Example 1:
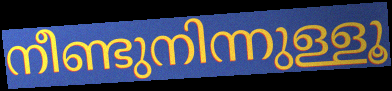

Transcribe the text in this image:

നീണ്ടുനിന്നുള്ളൂ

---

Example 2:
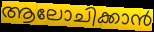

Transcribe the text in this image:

ആലോചിക്കാൻ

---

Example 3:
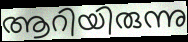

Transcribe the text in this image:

ആറിയിരുന്നു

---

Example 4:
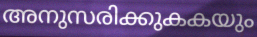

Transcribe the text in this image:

അനുസരിക്കുകകയും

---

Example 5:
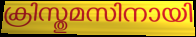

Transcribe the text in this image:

ക്രിസ്തുമസിനായി